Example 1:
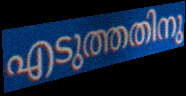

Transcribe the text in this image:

എടുത്തതിനു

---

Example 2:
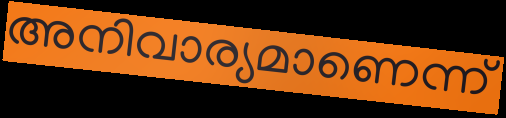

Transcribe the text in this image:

അനിവാര്യമാണെന്ന്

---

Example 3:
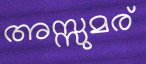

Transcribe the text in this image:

അസ്സുമര്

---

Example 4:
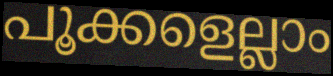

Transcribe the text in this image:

പൂക്കളെല്ലാം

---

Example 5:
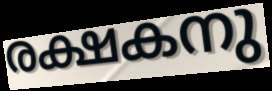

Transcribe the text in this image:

രക്ഷകനു